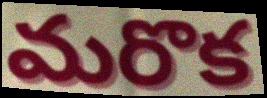
మరొక